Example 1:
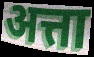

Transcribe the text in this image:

अत्ता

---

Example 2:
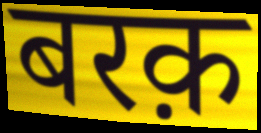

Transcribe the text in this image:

बरक़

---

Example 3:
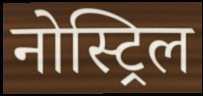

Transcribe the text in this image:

नोस्ट्रिल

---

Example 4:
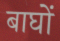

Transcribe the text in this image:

बाघों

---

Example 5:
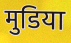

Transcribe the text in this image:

मुडिया